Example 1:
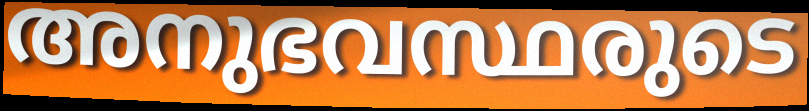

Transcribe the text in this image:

അനുഭവസ്ഥരുടെ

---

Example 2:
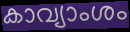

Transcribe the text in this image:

കാവ്യാംശം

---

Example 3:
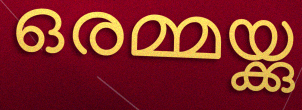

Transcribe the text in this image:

ഒരമ്മയ്ക്കു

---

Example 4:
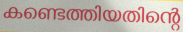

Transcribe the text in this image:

കണ്ടെത്തിയതിന്റെ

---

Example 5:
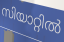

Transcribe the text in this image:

സിയാറ്റിൽ